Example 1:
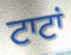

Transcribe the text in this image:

ਟਾਟਾਂ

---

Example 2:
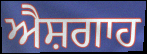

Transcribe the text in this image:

ਐਸ਼ਗਾਹ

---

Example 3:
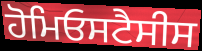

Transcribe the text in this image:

ਹੋਮਿਓਸਟੈਸੀਸ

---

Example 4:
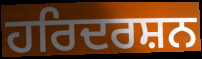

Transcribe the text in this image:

ਹਰਿਦਰਸ਼ਨ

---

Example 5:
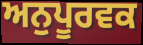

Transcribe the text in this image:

ਅਨੁਪੂਰਵਕ